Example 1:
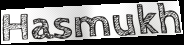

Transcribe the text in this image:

Hasmukh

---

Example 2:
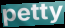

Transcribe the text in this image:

petty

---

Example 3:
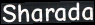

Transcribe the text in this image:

Sharada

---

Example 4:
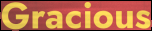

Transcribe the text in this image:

Gracious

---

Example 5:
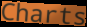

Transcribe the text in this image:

Charts